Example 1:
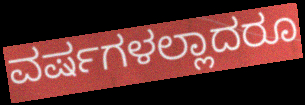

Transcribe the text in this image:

ವರ್ಷಗಳಲ್ಲಾದರೂ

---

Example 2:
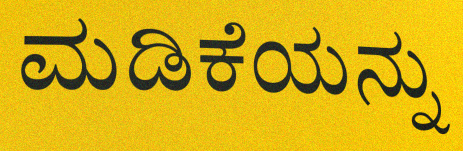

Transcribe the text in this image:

ಮಡಿಕೆಯನ್ನು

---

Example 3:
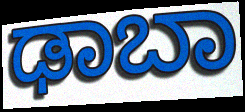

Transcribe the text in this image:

ಢಾಬಾ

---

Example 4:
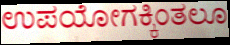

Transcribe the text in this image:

ಉಪಯೋಗಕ್ಕಿಂತಲೂ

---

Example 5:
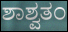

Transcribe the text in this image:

ಶಾಶ್ವತಂ